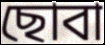
ছোবা